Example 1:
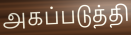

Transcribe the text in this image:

அகப்படுத்தி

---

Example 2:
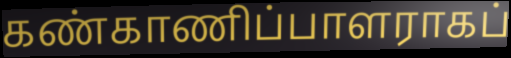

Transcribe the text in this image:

கண்காணிப்பாளராகப்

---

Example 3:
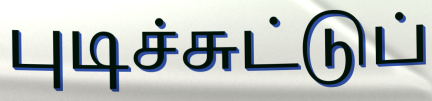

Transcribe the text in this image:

புடிச்சுட்டுப்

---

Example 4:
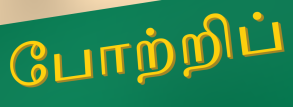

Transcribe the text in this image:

போற்றிப்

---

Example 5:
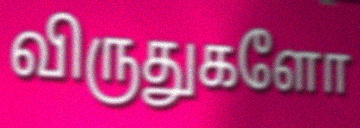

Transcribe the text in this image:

விருதுகளோ